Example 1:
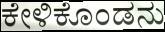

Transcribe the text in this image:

ಕೇಳಿಕೊಂಡನು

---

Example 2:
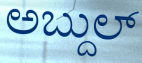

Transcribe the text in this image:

ಅಬ್ದುಲ್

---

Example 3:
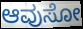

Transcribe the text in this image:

ಆವುಸೋ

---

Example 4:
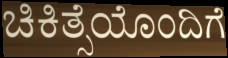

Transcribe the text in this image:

ಚಿಕಿತ್ಸೆಯೊಂದಿಗೆ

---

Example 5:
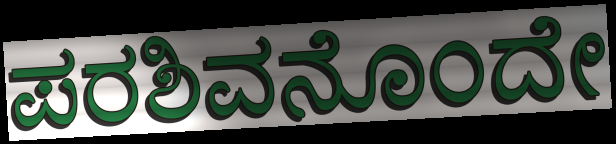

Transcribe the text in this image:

ಪರಶಿವನೊಂದೇ